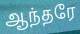
ஆந்தரே